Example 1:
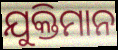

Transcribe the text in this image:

ଯୁକ୍ତିମାନ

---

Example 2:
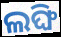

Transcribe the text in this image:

ଲଙ୍ଘି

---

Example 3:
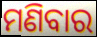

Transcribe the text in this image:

ମଣିବାର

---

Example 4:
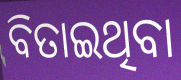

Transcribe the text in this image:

ବିତାଇଥିବା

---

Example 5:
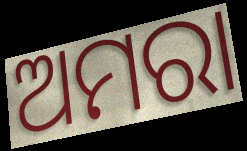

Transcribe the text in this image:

ଅମରା